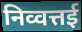
निव्वत्तई